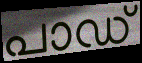
പാഡ്